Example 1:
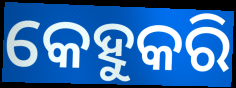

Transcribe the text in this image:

କେହୁକରି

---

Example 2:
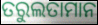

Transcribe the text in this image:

ତରୁଲତାମାନ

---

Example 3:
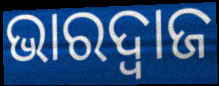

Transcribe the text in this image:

ଭାରଦ୍ୱାଜ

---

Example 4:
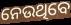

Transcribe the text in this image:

ନେଉଥିବେ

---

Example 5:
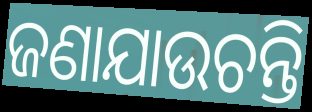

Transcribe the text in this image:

ଜଣାଯାଉଚନ୍ତି